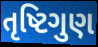
તૃષ્ટિગુણ